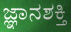
ಜ್ಞಾನಶಕ್ತಿ